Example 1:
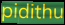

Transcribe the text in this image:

pidithu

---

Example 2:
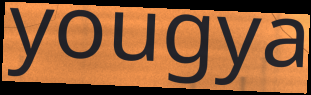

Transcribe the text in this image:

yougya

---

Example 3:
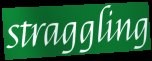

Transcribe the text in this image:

straggling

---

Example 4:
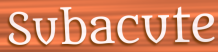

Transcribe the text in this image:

Subacute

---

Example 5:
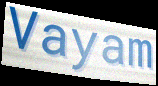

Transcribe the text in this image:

Vayam